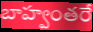
బాహ్వంతరే